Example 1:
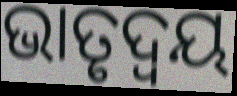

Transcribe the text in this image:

ଭାତୃଦ୍ବୟ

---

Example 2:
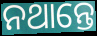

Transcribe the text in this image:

ନଥାନ୍ତେ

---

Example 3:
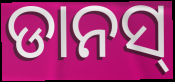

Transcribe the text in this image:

ଡାନସ୍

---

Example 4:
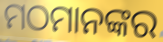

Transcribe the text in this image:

ମଠମାନଙ୍କର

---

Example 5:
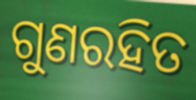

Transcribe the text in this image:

ଗୁଣରହିତ